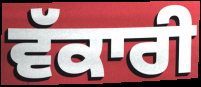
ਵੱਕਾਰੀ